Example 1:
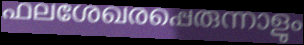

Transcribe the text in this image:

ഫലശേഖരപ്പെരുന്നാളും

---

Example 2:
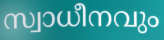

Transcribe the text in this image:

സ്വാധീനവും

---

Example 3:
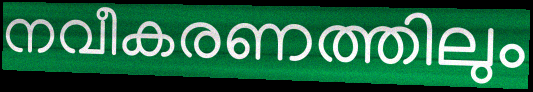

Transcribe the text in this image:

നവീകരണത്തിലും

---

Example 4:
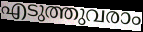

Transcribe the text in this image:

എടുത്തുവരാം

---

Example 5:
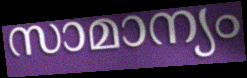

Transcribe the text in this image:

സാമാന്യം